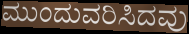
ಮುಂದುವರಿಸಿದವು